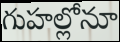
గుహల్లోనూ